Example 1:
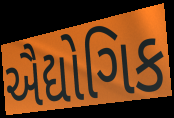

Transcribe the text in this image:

ઐદ્યોગિક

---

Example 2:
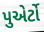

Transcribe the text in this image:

પુએર્ટો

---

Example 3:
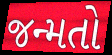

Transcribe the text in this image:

જન્મતો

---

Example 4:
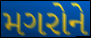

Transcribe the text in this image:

મગરોને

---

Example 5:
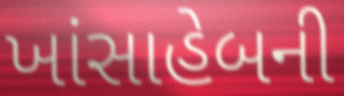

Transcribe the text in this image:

ખાંસાહેબની